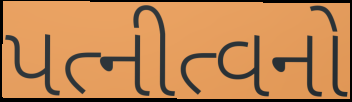
પત્નીત્વનો